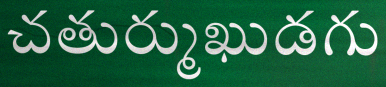
చతుర్ముఖుడగు